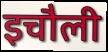
इचौली